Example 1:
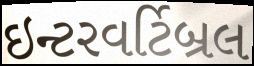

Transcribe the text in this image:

ઇન્ટરવર્ટિબ્રલ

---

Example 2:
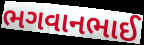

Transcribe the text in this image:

ભગવાનભાઈ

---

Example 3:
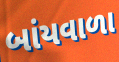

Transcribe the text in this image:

બાંયવાળા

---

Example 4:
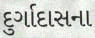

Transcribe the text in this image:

દુર્ગાદાસના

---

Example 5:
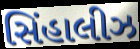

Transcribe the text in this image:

સિંહાલીઝ